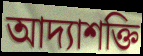
আদ্যাশক্তি